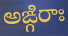
అఙ్గిరాః